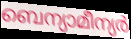
ബെന്യാമീന്യർ